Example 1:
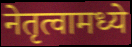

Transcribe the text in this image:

नेतृत्वामध्ये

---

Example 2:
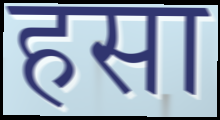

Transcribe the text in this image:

हसा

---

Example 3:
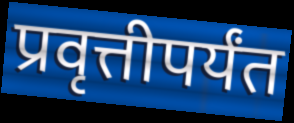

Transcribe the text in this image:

प्रवृत्तीपर्यंत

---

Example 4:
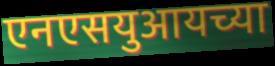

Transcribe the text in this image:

एनएसयुआयच्या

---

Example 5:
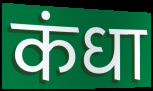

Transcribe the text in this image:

कंधा